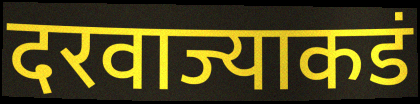
दरवाज्याकडं